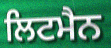
ਲਿਟਮੈਨ